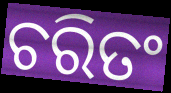
ଚରିତଂ